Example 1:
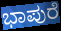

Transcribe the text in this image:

ಭಾಪುರೆ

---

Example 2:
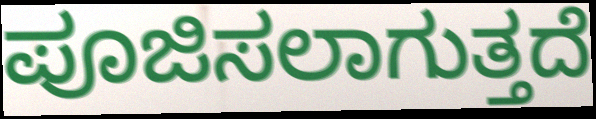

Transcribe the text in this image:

ಪೂಜಿಸಲಾಗುತ್ತದೆ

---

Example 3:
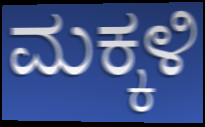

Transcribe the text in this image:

ಮಕ್ಕಳಿ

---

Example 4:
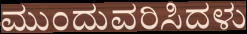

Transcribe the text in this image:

ಮುಂದುವರಿಸಿದಳು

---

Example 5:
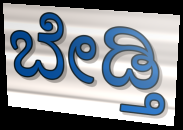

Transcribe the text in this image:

ಬೇಡ್ತಿ